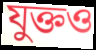
যুক্তও